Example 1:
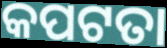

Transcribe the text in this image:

କପଟତା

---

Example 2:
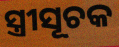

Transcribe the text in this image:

ସ୍ତ୍ରୀସୂଚକ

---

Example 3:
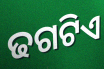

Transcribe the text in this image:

ଢଗଟିଏ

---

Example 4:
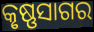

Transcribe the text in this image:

କୃଷ୍ଣସାଗର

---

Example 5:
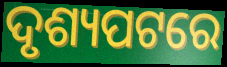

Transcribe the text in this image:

ଦୃଶ୍ୟପଟରେ